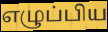
எழுப்பிய